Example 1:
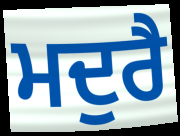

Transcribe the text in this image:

ਮਦੁਰੈ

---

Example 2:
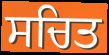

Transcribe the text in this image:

ਸਚਿਤ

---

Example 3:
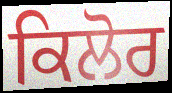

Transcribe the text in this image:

ਕਿਲੋਰ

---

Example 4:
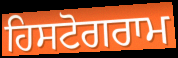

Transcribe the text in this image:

ਹਿਸਟੋਗਰਾਮ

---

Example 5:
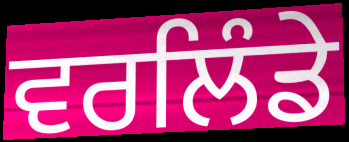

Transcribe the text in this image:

ਵਰਲਿੰਡੇ